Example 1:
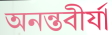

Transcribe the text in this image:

অনন্তবীর্যা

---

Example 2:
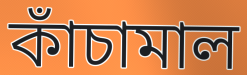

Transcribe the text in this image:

কাঁচামাল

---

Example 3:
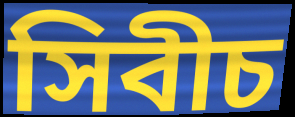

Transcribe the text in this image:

সিবীচ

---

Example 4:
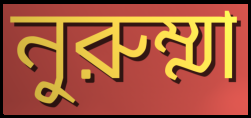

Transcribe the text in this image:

নুরুম্মা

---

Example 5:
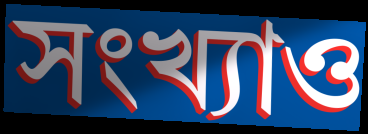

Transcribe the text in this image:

সংখ্যাও